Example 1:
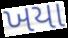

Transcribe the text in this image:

ખયા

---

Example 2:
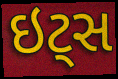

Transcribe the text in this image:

ઇટ્સ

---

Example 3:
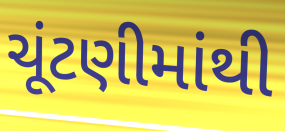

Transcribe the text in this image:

ચૂંટણીમાંથી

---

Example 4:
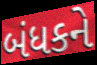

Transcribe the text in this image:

બંધકને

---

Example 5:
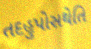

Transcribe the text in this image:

તદહુપોસથેતિ